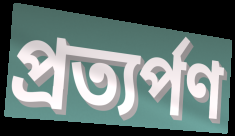
প্ৰত্যৰ্পণ